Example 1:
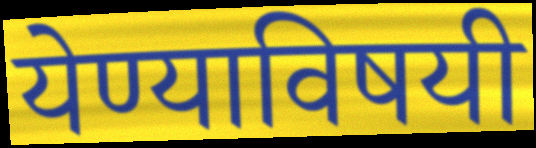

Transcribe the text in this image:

येण्याविषयी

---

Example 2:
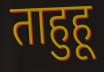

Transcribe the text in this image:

ताहुहू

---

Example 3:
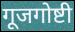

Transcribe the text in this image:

गूजगोष्टी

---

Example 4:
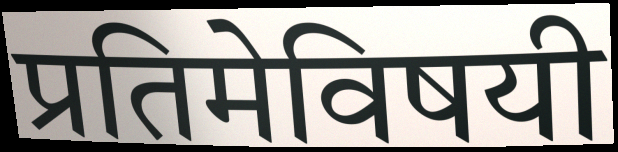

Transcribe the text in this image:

प्रतिमेविषयी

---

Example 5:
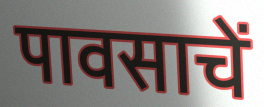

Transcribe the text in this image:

पावसाचें